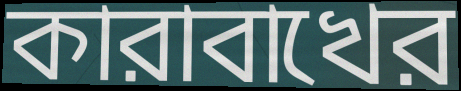
কারাবাখের